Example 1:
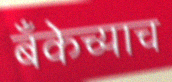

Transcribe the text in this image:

बँकेच्याच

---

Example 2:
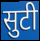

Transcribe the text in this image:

सुटी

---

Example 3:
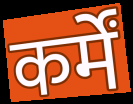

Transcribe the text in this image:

कर्में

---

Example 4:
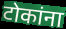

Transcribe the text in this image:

टोकांना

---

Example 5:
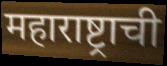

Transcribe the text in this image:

महाराष्ट्राची